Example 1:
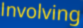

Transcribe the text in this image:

Involving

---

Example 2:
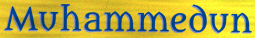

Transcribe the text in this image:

Muhammedun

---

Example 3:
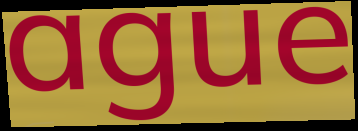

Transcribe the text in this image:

ague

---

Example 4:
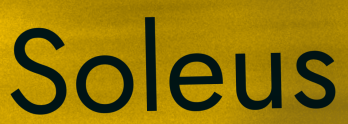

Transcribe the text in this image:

Soleus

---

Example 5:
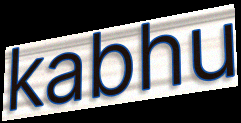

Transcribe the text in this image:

kabhu